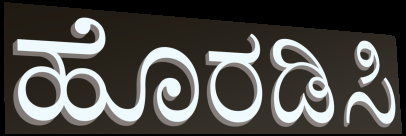
ಹೊರಡಿಸಿ